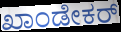
ಖಾಂಡೇಕರ್